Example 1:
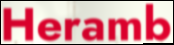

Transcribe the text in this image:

Heramb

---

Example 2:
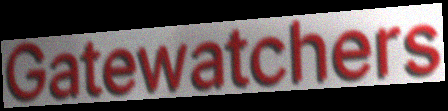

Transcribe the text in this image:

Gatewatchers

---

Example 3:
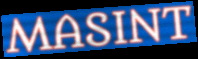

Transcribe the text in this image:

MASINT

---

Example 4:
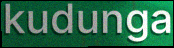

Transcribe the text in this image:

kudunga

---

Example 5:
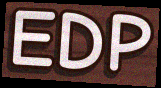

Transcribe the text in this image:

EDP